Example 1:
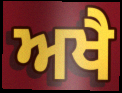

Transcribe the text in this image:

ਅਖੈ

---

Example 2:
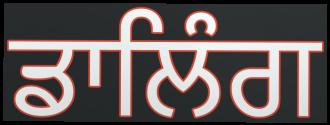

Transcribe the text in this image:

ਡਾਲਿੰਗ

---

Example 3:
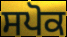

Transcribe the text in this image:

ਸਪੋਕ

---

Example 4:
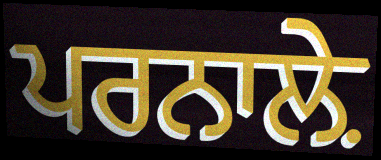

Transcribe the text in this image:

ਪਰਨਾਲ਼ੇ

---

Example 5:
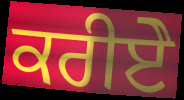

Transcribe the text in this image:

ਕਰੀਏੇ